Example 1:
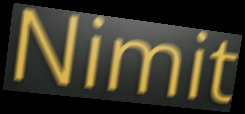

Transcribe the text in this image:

Nimit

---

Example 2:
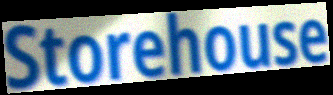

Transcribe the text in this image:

Storehouse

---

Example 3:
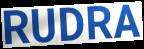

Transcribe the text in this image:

RUDRA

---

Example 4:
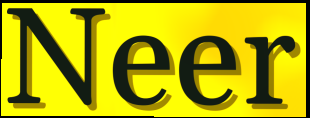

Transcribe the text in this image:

Neer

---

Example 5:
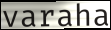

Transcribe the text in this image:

varaha